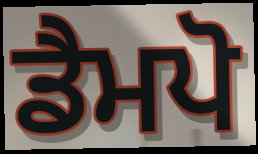
ਡੈਮਪੋ